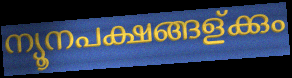
ന്യൂനപക്ഷങ്ങള്ക്കും